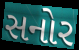
સનોર